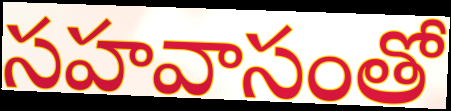
సహవాసంతో